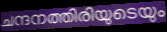
ചന്ദനത്തിരിയുടെയും